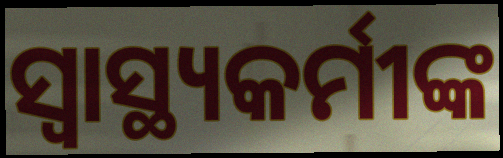
ସ୍ବାସ୍ଥ୍ୟକର୍ମୀଙ୍କ